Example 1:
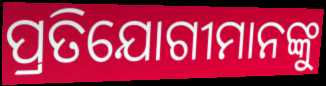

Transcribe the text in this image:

ପ୍ରତିଯୋଗୀମାନଙ୍କୁ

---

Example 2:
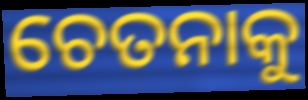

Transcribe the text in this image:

ଚେତନାକୁ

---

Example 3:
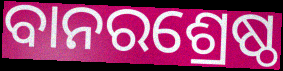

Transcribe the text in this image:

ବାନରଶ୍ରେଷ୍ଠ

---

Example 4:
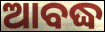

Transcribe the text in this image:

ଆବଦ୍ଧ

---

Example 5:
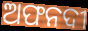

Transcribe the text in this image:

ଅଫନଦୀ